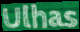
Ulhas